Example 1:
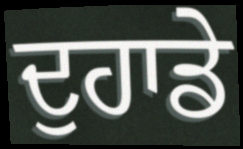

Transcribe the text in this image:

ਦੁਹਾਡੇ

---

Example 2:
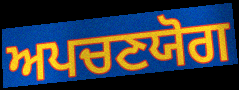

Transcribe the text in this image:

ਅਪਚਣਯੋਗ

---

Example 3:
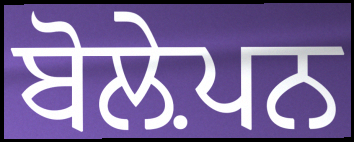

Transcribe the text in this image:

ਬੋਲ਼ੇਪਨ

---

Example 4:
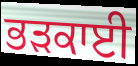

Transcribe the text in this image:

ਭੜਕਾਈ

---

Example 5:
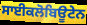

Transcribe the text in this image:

ਸਾਈਕਲੋਬਿਊਟੇਨ